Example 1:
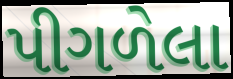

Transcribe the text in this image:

પીગળેલા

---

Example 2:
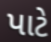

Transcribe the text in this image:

પાટે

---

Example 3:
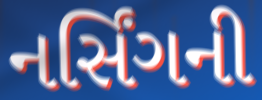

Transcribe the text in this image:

નર્સિંગની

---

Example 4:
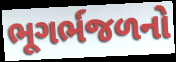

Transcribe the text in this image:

ભૂગર્ભજળનો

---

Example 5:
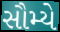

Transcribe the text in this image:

સૌમ્યે